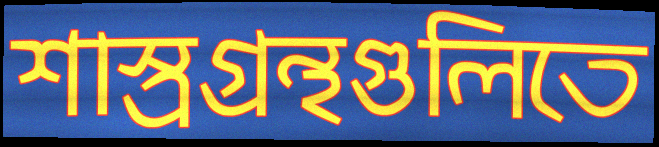
শাস্ত্রগ্রন্থগুলিতে